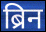
ब्रिन